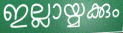
ഇല്ലായ്മക്കും